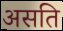
असति